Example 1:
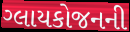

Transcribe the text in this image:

ગ્લાયકોજનની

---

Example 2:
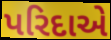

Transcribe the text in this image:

પરિદાએ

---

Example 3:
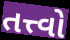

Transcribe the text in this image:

તત્ત્વો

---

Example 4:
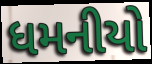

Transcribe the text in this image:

ધમનીયો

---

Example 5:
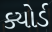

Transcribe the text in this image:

ક્યોર્ડ